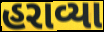
હરાવ્યા